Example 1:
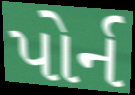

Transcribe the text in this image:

પોર્ન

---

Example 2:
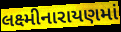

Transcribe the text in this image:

લક્ષ્મીનારાયણમાં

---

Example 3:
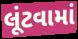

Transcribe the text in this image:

લૂંટવામાં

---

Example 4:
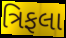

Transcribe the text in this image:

ત્રિફલા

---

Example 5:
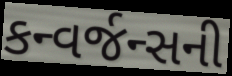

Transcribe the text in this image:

કન્વર્જન્સની